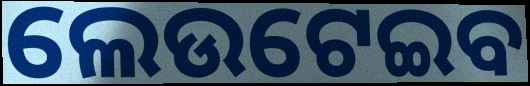
ଲେଉଟେଇବ